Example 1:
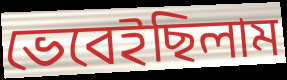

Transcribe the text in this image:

ভেবেইছিলাম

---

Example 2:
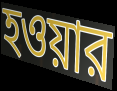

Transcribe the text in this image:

হওয়ার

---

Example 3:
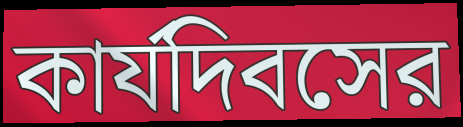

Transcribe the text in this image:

কার্যদিবসের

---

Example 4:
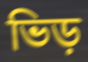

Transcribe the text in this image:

ভিড়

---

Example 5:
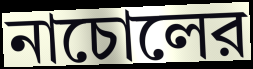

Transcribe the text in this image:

নাচোলের